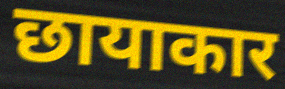
छायाकार